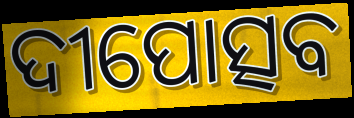
ଦୀପୋତ୍ସବ